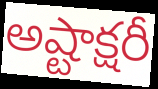
అష్టాక్షరీ